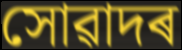
সোৱাদৰ